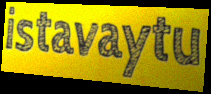
istavaytu